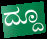
ದ್ದೂ